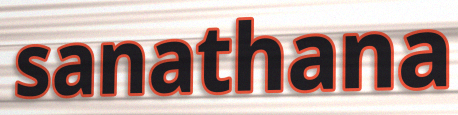
sanathana